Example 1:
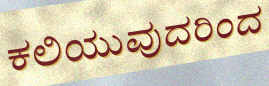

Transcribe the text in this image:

ಕಲಿಯುವುದರಿಂದ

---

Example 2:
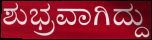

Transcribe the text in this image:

ಶುಭ್ರವಾಗಿದ್ದು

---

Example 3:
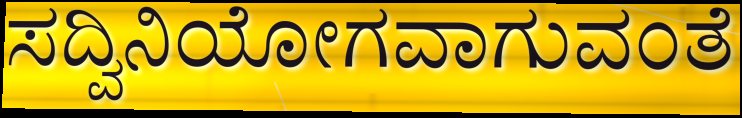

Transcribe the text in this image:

ಸದ್ವಿನಿಯೋಗವಾಗುವಂತೆ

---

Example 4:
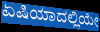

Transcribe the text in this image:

ಏಷಿಯಾದಲ್ಲಿಯೇ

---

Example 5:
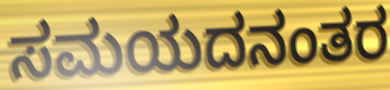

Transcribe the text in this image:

ಸಮಯದನಂತರ